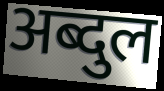
अब्दुल